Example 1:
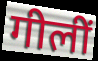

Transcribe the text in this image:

गीलीं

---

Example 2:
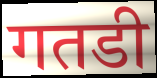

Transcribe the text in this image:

गतडी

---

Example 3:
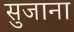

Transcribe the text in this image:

सुजाना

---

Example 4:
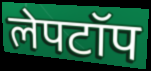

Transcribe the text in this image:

लेपटॉप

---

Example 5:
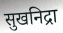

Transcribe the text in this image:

सुखनिद्रा